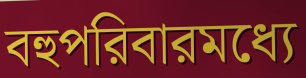
বহুপরিবারমধ্যে